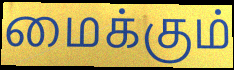
மைக்கும்